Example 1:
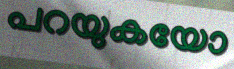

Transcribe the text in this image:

പറയുകയോ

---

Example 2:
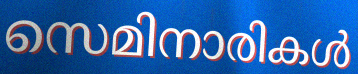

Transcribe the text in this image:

സെമിനാരികൾ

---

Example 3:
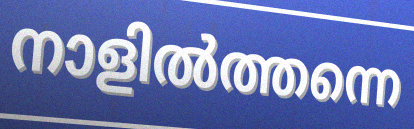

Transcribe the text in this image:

നാളിൽത്തന്നെ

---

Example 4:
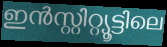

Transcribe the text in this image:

ഇൻസ്റ്റിറ്റ്യൂട്ടിലെ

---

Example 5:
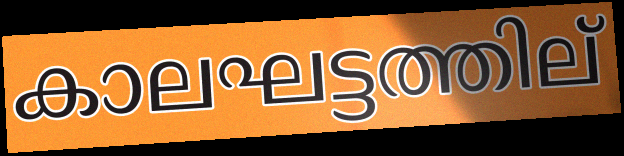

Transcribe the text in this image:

കാലഘട്ടത്തില്